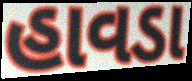
હાવડા